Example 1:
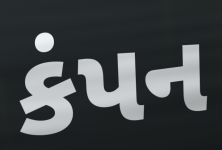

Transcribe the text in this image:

કંપન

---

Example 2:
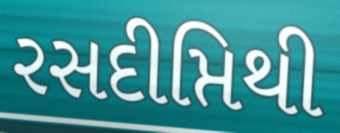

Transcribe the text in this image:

રસદીપ્તિથી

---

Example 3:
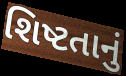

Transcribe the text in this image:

શિષ્ટતાનું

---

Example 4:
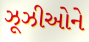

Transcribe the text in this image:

ઝૂઝીઓને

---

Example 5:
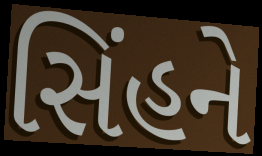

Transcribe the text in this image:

સિંહને